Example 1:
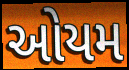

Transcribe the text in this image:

ઓયમ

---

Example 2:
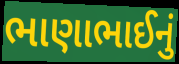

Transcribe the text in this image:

ભાણાભાઈનું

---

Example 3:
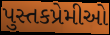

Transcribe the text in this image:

પુસ્તકપ્રેમીઓ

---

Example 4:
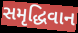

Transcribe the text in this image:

સમૃદ્ધિવાન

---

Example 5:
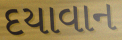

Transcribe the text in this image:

દયાવાન